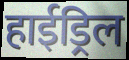
हाईड्रिल